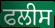
ਫਲੀਸ